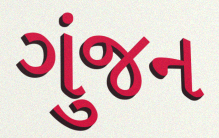
ગુંજન